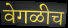
वेगळीच